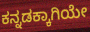
ಕನ್ನಡಕ್ಕಾಗಿಯೇ